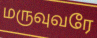
மருவுவரே